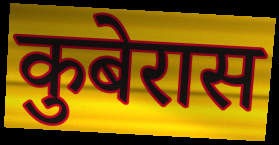
कुबेरास